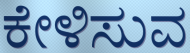
ಕೇಳಿಸುವ